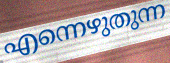
എന്നെഴുതുന്ന